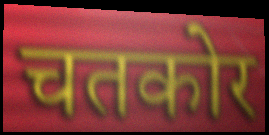
चतकोर